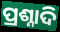
ପ୍ରଶ୍ନାଦି